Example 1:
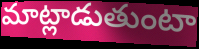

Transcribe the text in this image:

మాట్లాడుతుంటా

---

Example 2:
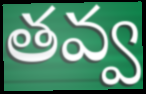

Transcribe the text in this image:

తవ్వ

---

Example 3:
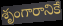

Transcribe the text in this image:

శృంగారానికే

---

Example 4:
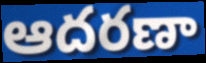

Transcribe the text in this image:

ఆదరణా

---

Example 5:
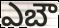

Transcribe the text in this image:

ఎబౌ